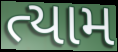
ત્યામ